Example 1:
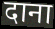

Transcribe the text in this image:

दाना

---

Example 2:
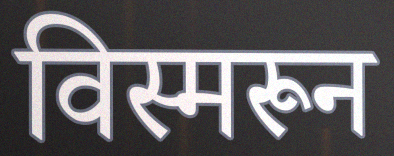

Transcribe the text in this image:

विस्मरून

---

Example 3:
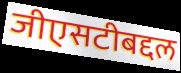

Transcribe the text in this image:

जीएसटीबद्दल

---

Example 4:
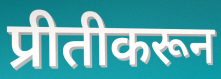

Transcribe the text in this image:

प्रीतीकरून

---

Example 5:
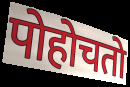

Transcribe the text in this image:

पोहोचतो